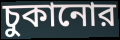
চুকানোর